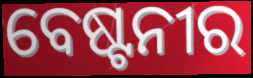
ବେଷ୍ଟନୀର